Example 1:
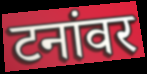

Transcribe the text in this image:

टनांवर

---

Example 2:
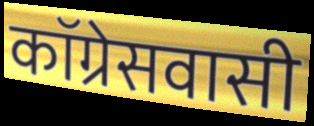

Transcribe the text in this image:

कॉग्रेसवासी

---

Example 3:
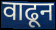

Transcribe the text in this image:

वाढून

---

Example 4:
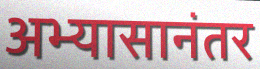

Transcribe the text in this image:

अभ्यासानंतर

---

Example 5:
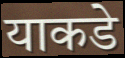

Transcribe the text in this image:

याकडे